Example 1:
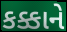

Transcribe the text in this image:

કક્કાને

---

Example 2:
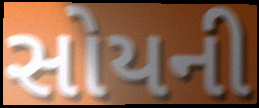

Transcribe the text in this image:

સોયની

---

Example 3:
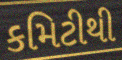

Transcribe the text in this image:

કમિટીથી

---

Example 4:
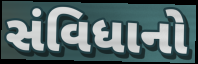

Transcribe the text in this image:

સંવિધાનો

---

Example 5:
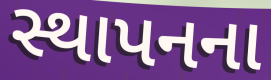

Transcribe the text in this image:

સ્થાપનના